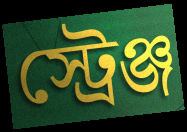
স্ট্রেঞ্জ